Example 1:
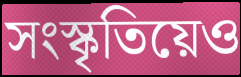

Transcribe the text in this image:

সংস্কৃতিয়েও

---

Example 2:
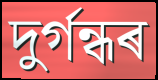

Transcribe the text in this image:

দুৰ্গন্ধৰ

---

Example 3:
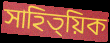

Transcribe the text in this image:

সাহিত্য়িক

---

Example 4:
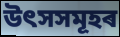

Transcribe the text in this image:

উৎসসমূহৰ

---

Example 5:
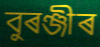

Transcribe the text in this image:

বুৰঞ্জীৰ